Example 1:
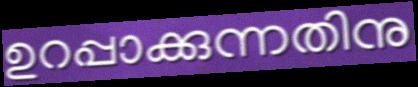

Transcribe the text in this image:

ഉറപ്പാക്കുന്നതിനു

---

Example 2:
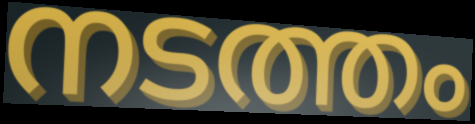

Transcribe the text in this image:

നടത്തം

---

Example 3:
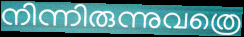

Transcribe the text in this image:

നിന്നിരുന്നുവത്രെ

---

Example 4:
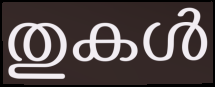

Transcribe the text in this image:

തുകൾ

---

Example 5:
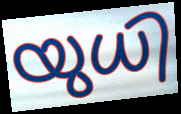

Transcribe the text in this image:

യുധി